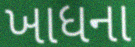
ખાધના